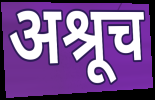
अश्रूच